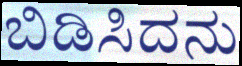
ಬಿಡಿಸಿದನು